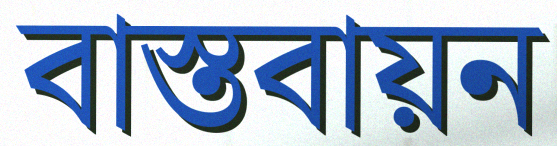
বাস্তবায়ন